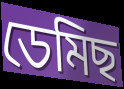
ডেমিছ